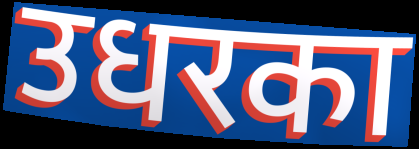
उधरका